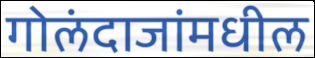
गोलंदाजांमधील